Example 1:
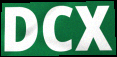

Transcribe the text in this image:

DCX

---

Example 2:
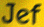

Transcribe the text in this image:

Jef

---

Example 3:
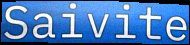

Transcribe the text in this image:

Saivite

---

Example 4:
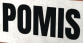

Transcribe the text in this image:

POMIS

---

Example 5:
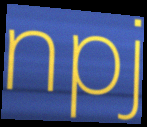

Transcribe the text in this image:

npj